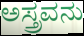
ಅಸ್ತ್ರವನು